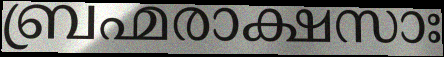
ബ്രഹ്മരാക്ഷസാഃ